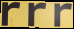
rrr